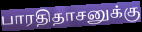
பாரதிதாசனுக்கு